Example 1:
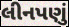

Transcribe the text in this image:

લીનપણું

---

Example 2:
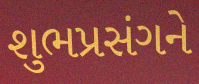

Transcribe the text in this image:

શુભપ્રસંગને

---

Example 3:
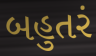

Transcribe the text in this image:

બહુતરં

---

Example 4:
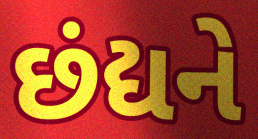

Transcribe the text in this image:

છંદ્યને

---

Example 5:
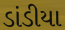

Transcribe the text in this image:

ડાંડીયા